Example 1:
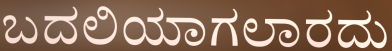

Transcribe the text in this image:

ಬದಲಿಯಾಗಲಾರದು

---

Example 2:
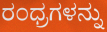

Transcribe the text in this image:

ರಂಧ್ರಗಳನ್ನು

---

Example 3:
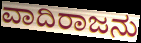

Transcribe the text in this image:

ವಾದಿರಾಜನು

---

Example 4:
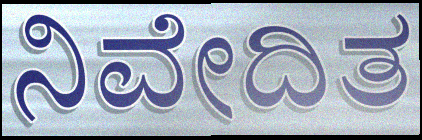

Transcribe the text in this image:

ನಿವೇದಿತ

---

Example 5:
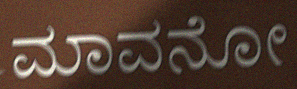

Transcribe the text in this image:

ಮಾವನೋ